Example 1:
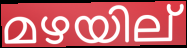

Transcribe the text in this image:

മഴയില്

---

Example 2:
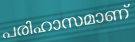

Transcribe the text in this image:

പരിഹാസമാണ്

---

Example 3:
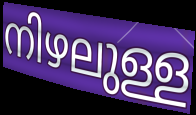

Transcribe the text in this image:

നിഴലുള്ള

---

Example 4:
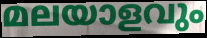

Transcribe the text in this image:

മലയാളവും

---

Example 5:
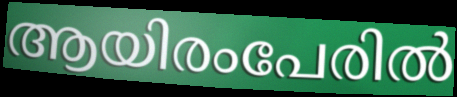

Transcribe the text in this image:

ആയിരംപേരിൽ